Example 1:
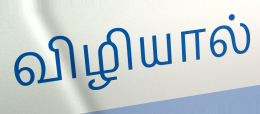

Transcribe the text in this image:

விழியால்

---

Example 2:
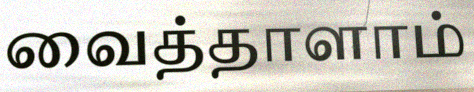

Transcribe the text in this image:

வைத்தாளாம்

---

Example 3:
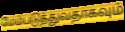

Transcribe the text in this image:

மேம்படுத்துவதாகவும்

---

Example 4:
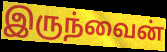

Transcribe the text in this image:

இருந்வைன்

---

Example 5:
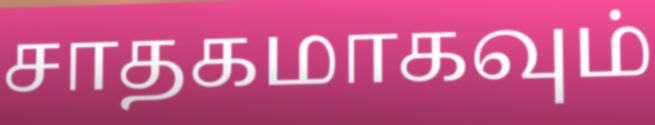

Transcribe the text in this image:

சாதகமாகவும்